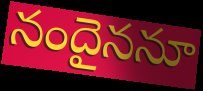
నందైననూ